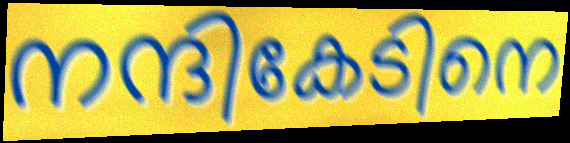
നന്ദികേടിനെ